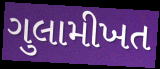
ગુલામીખત